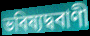
ভবিষ্যদ্ববাণী